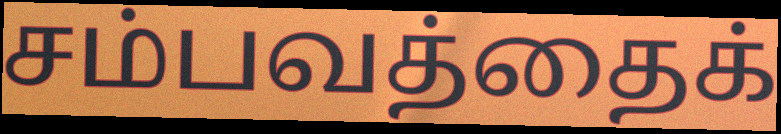
சம்பவத்தைக்